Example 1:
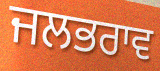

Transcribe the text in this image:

ਜਲਭਰਾਵ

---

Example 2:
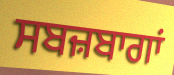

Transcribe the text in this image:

ਸਬਜ਼ਬਾਗਾਂ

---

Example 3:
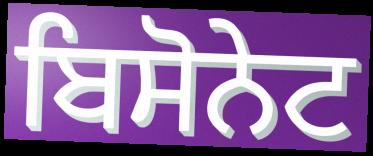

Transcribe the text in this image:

ਬਿਸੋਨੇਟ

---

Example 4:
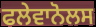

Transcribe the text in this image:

ਫਲੇਵਾਨੋਲਸ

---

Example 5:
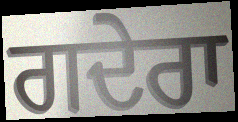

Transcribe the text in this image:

ਗਦੇਰਾ